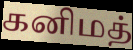
கனிமத்